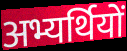
अभ्यर्थियों